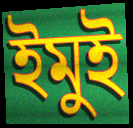
ইমুই